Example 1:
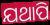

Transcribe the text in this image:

ଯଥାପି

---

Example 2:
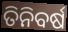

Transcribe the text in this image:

ତିନିବର୍ଷ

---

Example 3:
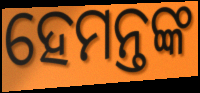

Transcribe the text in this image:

ହେମନ୍ତଙ୍କ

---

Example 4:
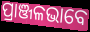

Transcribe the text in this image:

ପ୍ରାଞ୍ଜଳଭାବେ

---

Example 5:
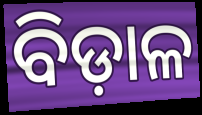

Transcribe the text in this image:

ବିଡ଼ାଳ